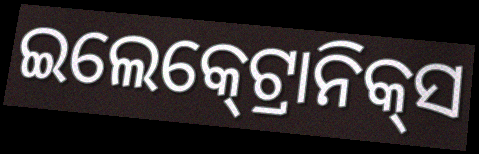
ଇଲେକ୍‍ଟ୍ରୋନିକ୍‍ସ